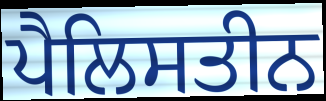
ਪੈਲਿਸਤੀਨ